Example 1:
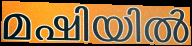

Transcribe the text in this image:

മഷിയിൽ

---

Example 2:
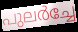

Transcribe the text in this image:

പുലർച്ചേ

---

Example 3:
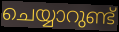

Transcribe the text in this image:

ചെയ്യാറുണ്ട്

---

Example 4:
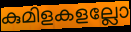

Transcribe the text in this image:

കുമിളകളല്ലോ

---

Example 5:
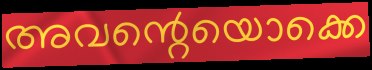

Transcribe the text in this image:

അവന്റെയൊക്കെ